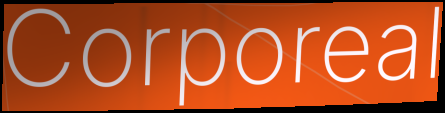
Corporeal